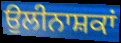
ਉਲੀਨਾਸ਼ਕਾਂ